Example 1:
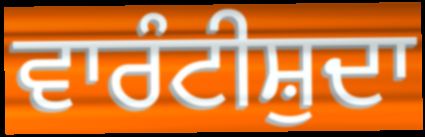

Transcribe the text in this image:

ਵਾਰੰਟੀਸ਼ੁਦਾ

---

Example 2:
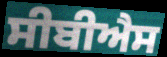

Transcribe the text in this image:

ਸੀਬੀਐਸ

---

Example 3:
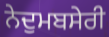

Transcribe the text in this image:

ਨੇਦੁਮਬਸੇਰੀ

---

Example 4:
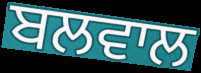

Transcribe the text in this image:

ਬਲਵਾਲ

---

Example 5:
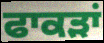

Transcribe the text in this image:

ਫਾਕੜਾਂ